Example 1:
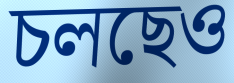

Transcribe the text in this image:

চলছেও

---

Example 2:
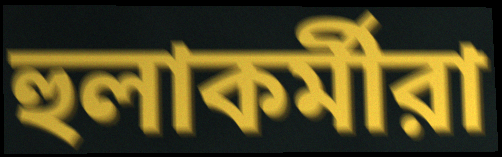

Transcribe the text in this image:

হুলাকর্মীরা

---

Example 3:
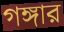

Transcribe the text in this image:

গঙ্গার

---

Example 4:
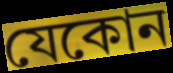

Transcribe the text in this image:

যেকোন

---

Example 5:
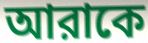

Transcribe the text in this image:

আরাকে